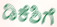
ಡಿಕೆಶಿಗೆ